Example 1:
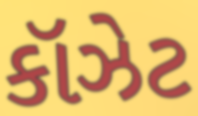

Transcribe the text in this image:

કૉઝેટ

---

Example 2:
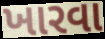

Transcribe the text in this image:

ખારવા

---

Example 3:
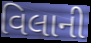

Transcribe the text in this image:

વિલાની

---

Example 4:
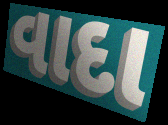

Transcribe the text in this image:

વાદા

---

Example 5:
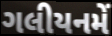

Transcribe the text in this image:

ગલીયનમેં